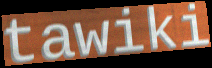
tawiki